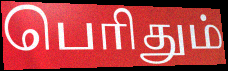
பெரிதும்